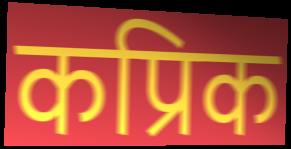
कप्रिक